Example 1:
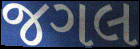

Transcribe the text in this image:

જગલ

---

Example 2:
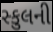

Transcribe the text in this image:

સ્કુલની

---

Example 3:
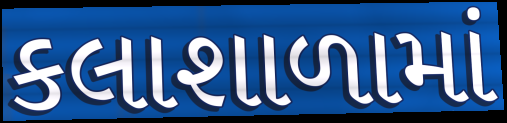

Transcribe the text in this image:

કલાશાળામાં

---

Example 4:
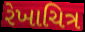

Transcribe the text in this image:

રેખાચિત્ર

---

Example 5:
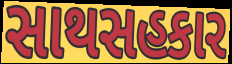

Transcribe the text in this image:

સાથસહકાર